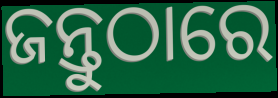
ଜନ୍ତୁଠାରେ